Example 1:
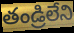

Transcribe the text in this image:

తండ్రిలేని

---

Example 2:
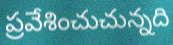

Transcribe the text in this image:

ప్రవేశించుచున్నది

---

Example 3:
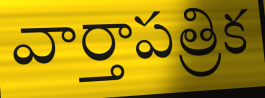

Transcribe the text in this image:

వార్తాపత్రిక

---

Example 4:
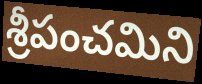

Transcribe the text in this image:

శ్రీపంచమిని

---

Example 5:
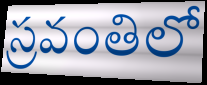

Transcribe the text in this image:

స్రవంతిలో